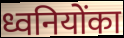
ध्वनियोंका